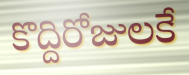
కొద్దిరోజులకే